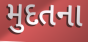
મુદતના